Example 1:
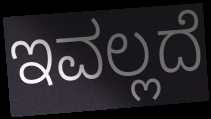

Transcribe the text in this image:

ಇವಲ್ಲದೆ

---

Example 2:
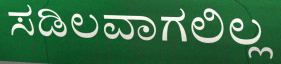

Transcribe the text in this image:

ಸಡಿಲವಾಗಲಿಲ್ಲ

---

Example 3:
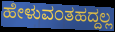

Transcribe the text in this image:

ಹೇಳುವಂತಹದ್ದಲ್ಲ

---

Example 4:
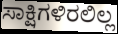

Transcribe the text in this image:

ಸಾಕ್ಷಿಗಳಿರಲಿಲ್ಲ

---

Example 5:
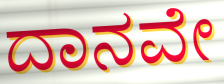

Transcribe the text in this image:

ದಾನವೇ